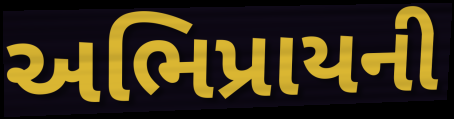
અભિપ્રાયની